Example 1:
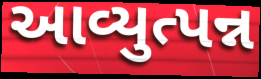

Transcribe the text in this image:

આવ્યુત્પન્ન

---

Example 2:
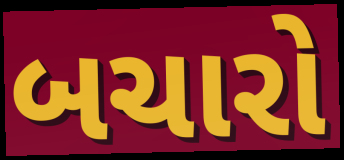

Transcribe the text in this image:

બચારો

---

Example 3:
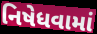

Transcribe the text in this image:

નિષેધવામાં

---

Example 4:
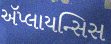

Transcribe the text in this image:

ઍપ્લાયન્સિસ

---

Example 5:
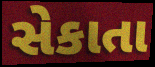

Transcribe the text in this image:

સેકાતા